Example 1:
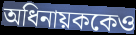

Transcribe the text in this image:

অধিনায়ককেও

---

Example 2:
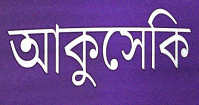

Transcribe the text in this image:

আকুসেকি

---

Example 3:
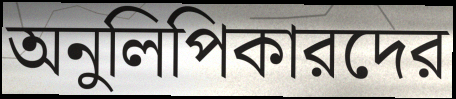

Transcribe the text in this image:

অনুলিপিকারদের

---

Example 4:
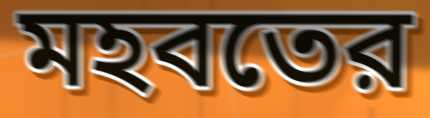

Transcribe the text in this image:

মহবতের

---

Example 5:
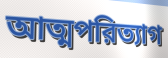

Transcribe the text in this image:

আত্মপরিত্যাগ